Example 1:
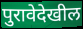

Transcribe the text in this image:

पुरावेदेखील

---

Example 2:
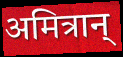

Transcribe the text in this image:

अमित्रान्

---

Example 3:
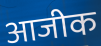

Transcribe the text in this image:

आजीक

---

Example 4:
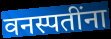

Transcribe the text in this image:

वनस्‍पतींना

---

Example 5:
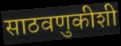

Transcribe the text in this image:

साठवणुकीशी